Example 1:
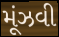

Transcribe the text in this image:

મૂંઝવી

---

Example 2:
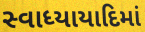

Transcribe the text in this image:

સ્વાધ્યાયાદિમાં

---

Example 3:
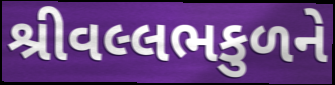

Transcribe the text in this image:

શ્રીવલ્લભકુળને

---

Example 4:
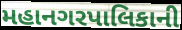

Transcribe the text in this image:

મહાનગરપાલિકાની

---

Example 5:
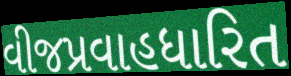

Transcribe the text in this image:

વીજપ્રવાહધારિત